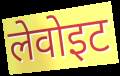
लेवोइट